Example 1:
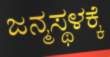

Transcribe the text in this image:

ಜನ್ಮಸ್ಥಳಕ್ಕೆ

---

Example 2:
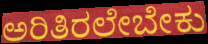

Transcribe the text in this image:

ಅರಿತಿರಲೇಬೇಕು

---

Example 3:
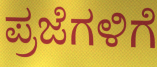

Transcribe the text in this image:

ಪ್ರಜೆಗಳಿಗೆ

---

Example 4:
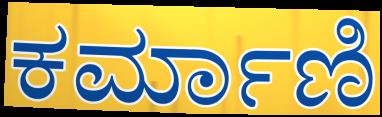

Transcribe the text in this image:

ಕರ್ಮಾಣಿ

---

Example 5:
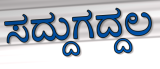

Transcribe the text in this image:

ಸದ್ದುಗದ್ದಲ